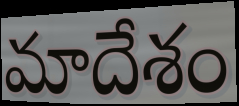
మాదేశం